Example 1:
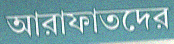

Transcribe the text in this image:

আরাফাতদের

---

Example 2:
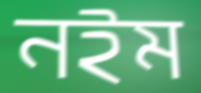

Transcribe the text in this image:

নইম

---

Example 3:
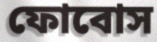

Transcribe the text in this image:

ফোবোস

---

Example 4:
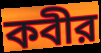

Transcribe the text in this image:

কবীর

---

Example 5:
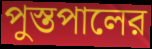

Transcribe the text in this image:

পুস্তপালের